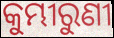
କୁମ୍ଭୀରୁଣୀ